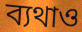
ব্যথাও